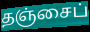
தஞ்சைப்